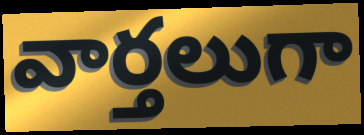
వార్తలుగా